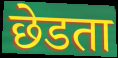
छेडता